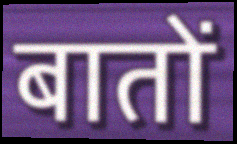
बातों